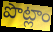
పొట్లాం